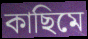
কাছিমে